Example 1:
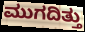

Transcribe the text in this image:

ಮುಗದಿತ್ತು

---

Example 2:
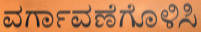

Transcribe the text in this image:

ವರ್ಗಾವಣೆಗೊಳಿಸಿ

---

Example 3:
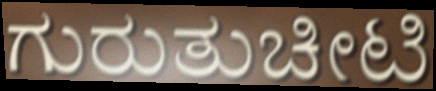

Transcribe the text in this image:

ಗುರುತುಚೀಟಿ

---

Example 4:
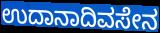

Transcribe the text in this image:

ಉದಾನಾದಿವಸೇನ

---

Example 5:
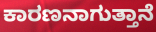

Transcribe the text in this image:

ಕಾರಣನಾಗುತ್ತಾನೆ